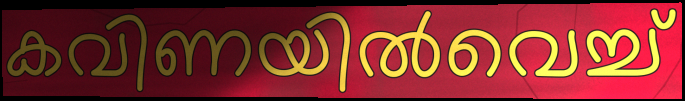
കവിണയിൽവെച്ച്